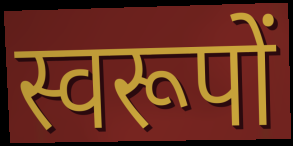
स्वरूपों